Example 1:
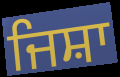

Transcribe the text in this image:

ਜਿਸ਼ਾ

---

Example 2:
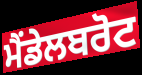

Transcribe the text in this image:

ਮੈਂਡੇਲਬਰੋਟ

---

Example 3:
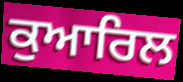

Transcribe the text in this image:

ਕੁਆਰਿਲ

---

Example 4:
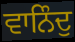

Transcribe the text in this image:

ਵਾਨਿੰਦੁ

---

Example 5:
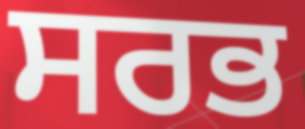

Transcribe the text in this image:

ਸਰਭ